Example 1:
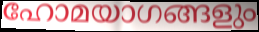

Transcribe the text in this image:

ഹോമയാഗങ്ങളും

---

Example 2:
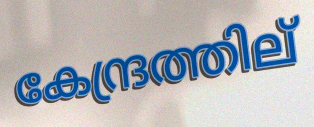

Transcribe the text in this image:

കേന്ദ്രത്തില്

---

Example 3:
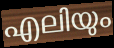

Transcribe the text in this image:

എലിയും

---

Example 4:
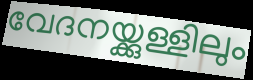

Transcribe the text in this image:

വേദനയ്ക്കുള്ളിലും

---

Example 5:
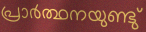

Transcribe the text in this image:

പ്രാർത്ഥനയുണ്ടു്